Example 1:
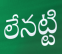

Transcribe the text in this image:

లేనట్టి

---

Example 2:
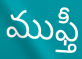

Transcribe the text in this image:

ముఫ్తీ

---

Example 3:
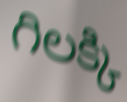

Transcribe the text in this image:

గిలక్కి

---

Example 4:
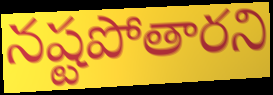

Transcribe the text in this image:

నష్టపోతారని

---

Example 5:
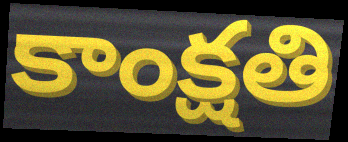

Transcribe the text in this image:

కాంక్షతి